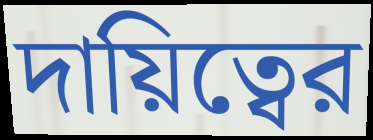
দায়িত্বের